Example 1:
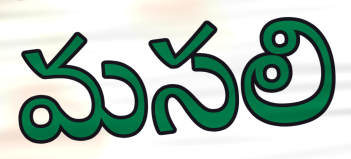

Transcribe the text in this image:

మసలి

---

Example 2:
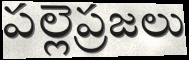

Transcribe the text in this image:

పల్లెప్రజలు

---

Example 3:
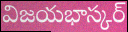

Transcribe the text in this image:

విజయభాస్కర్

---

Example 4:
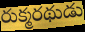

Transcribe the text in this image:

రుక్మరథుడు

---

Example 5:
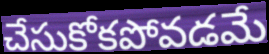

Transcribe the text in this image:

చేసుకోకపోవడమే